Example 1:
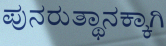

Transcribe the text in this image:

ಪುನರುತ್ಥಾನಕ್ಕಾಗಿ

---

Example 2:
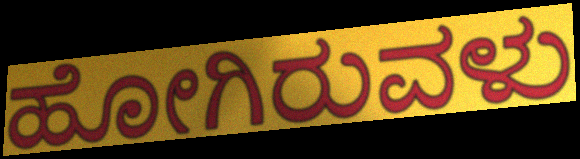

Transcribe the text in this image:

ಹೋಗಿರುವಳು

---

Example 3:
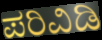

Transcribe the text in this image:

ಪರಿವಿಡಿ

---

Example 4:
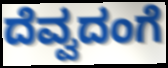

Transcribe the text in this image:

ದೆವ್ವದಂಗೆ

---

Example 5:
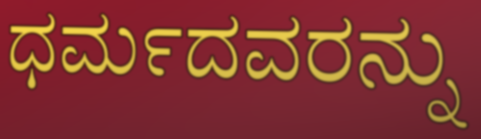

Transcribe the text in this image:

ಧರ್ಮದವರನ್ನು